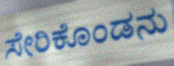
ಸೇರಿಕೊಂಡನು